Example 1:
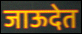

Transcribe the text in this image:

जाऊदेत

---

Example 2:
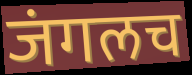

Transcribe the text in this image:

जंगलच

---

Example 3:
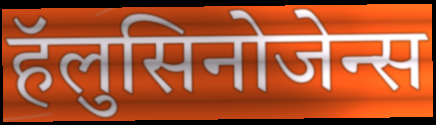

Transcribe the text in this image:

हॅलुसिनोजेन्स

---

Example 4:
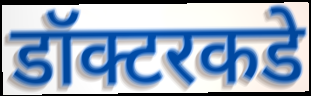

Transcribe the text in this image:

डॉक्टरकडे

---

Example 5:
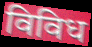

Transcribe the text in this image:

विविध